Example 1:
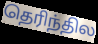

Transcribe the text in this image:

தெரிந்தில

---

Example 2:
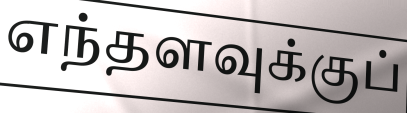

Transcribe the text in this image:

எந்தளவுக்குப்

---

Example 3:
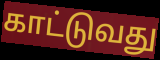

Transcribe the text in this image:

காட்டுவது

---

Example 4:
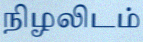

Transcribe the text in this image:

நிழலிடம்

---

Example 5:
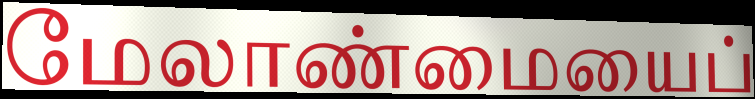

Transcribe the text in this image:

மேலாண்மையைப்